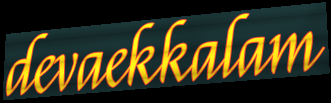
devaekkalam